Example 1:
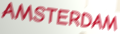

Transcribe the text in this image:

AMSTERDAM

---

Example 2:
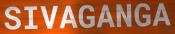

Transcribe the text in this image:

SIVAGANGA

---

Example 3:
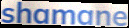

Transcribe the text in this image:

shamane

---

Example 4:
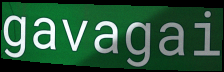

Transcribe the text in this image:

gavagai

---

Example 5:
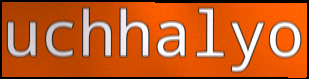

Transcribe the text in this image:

uchhalyo